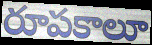
రూపకాలూ